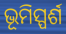
ଭୂମିସ୍ପର୍ଶ